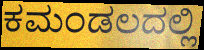
ಕಮಂಡಲದಲ್ಲಿ